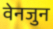
वेनजुन